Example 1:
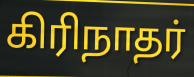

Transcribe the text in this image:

கிரிநாதர்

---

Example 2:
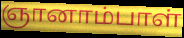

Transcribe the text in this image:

ஞானாம்பாள்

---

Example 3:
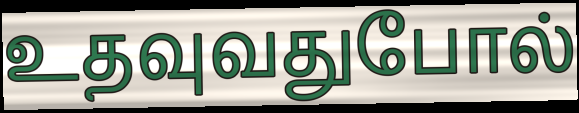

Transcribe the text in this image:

உதவுவதுபோல்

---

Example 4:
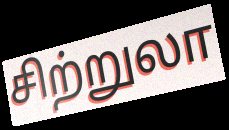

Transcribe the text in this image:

சிற்றுலா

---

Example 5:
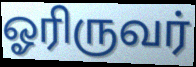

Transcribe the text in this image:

ஓரிருவர்